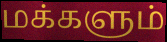
மக்களும்